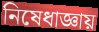
নিষেধাজ্ঞায়